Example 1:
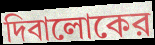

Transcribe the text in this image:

দিবালোকের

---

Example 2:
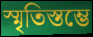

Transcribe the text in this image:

স্মৃতিস্তম্ভে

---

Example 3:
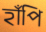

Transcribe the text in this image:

হাঁপি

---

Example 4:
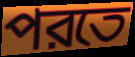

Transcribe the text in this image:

পরতে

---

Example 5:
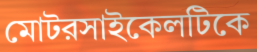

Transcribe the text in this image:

মোটরসাইকেলটিকে